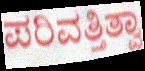
ಪರಿವತ್ತಿತ್ವಾ